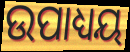
ଉପାଧ୍ୟୟ